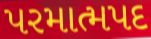
પરમાત્મપદ